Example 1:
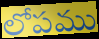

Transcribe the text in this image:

లోపము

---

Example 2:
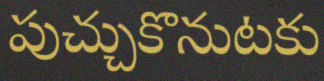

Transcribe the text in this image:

పుచ్చుకొనుటకు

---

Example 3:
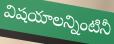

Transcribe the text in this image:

విషయాలన్నింటినీ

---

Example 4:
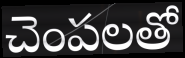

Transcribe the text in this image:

చెంపలతో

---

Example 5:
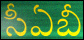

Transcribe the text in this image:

సీఏబీ